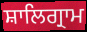
ਸ਼ਾਲਿਗ੍ਰਾਮ